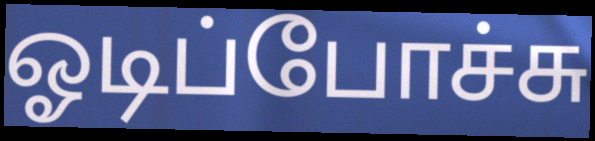
ஓடிப்போச்சு